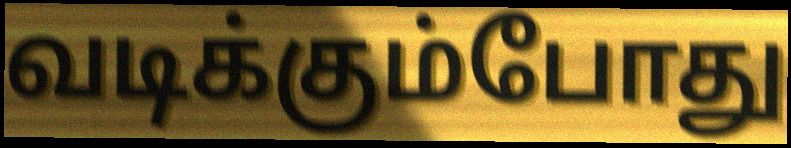
வடிக்கும்போது